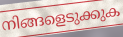
നിങ്ങളെടുക്കുക